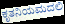
ಕೃತನಿಯಮದಲಿ